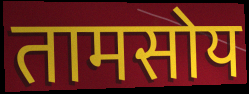
तामसोय